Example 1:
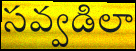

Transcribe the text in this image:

సవ్వడిలా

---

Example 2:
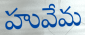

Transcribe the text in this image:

హువేమ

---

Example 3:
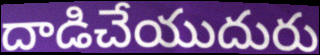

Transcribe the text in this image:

దాడిచేయుదురు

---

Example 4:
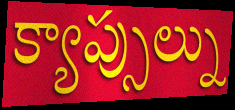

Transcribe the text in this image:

క్యాప్సుల్ను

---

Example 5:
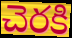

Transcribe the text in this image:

చెరకి